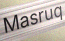
Masruq